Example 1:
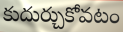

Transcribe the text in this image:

కుదుర్చుకోవటం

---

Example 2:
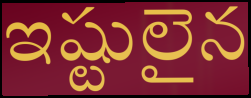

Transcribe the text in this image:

ఇష్టులైన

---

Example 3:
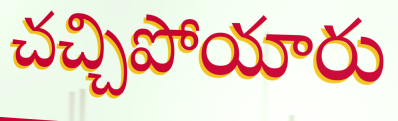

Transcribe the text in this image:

చచ్చిపోయారు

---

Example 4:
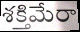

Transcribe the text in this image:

శక్తిమేరా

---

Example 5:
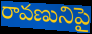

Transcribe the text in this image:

రావణునిపై